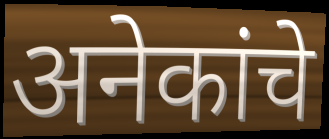
अनेकांचे